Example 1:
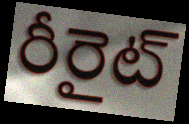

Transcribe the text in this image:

రీరైట్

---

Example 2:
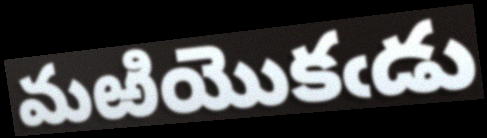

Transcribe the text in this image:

మఱియొకఁడు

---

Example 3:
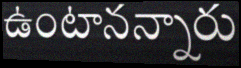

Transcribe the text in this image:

ఉంటానన్నారు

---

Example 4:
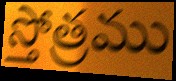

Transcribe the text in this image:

స్తోత్రము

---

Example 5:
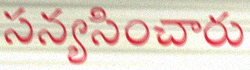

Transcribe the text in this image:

సన్యసించారు